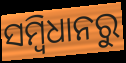
ସମ୍ବିଧାନରୁ